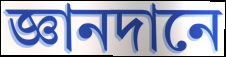
জ্ঞানদানে